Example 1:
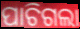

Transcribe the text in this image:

ପାଚିଗଲା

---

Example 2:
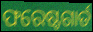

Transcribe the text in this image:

ଫରେଷ୍ଟଗାର୍ଡ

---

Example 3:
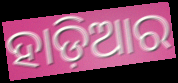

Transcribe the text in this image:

ହାଡ଼ିଆର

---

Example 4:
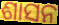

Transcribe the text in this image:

ଶାସନ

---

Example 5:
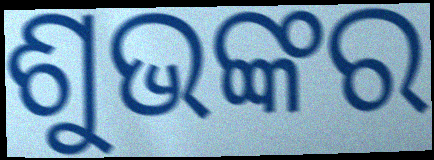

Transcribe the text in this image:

ଶୁଭଙ୍କର